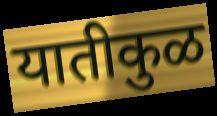
यातीकुळ